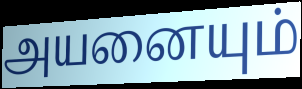
அயனையும்